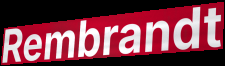
Rembrandt